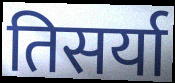
तिसर्या